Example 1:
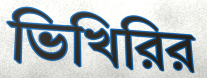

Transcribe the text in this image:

ভিখিরির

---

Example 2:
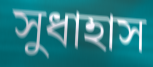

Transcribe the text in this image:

সুধাহাস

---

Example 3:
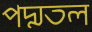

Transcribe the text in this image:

পদ্মতল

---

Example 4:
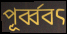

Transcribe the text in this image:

পূর্ব্ববৎ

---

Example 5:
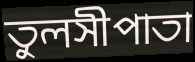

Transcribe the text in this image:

তুলসীপাতা